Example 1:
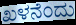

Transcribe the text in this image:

ಖಳನೆಂದು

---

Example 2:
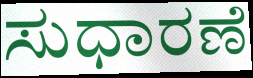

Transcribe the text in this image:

ಸುಧಾರಣೆ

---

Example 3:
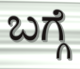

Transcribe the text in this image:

ಬಗ್ಗೆ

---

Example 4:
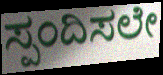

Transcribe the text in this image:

ಸ್ಪಂದಿಸಲೇ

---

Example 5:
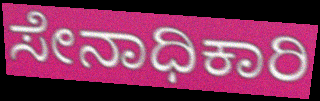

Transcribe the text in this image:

ಸೇನಾಧಿಕಾರಿ